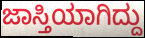
ಜಾಸ್ತಿಯಾಗಿದ್ದು